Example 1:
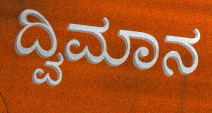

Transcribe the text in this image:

ದ್ವಿಮಾನ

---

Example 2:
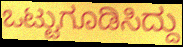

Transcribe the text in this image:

ಒಟ್ಟುಗೂಡಿಸಿದ್ದು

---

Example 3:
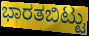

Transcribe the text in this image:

ಭಾರತಬಿಟ್ಟು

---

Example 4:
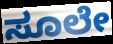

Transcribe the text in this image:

ಸೂಲೇ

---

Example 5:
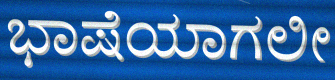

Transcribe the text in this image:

ಭಾಷೆಯಾಗಲೀ